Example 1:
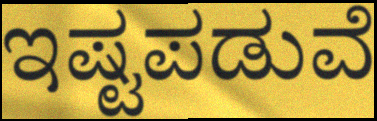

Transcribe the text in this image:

ಇಷ್ಟಪಡುವೆ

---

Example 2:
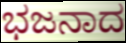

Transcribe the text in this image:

ಭಜನಾದ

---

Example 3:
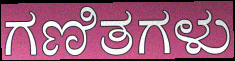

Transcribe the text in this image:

ಗಣಿತಗಳು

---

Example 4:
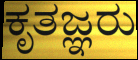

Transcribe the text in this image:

ಕೃತಜ್ಞರು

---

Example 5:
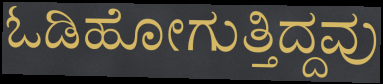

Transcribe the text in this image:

ಓಡಿಹೋಗುತ್ತಿದ್ದವು